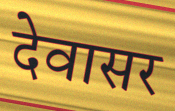
देवासर